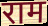
राम